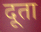
दूता